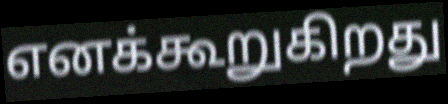
எனக்கூறுகிறது